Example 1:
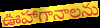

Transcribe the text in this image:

ఊహాగానాలను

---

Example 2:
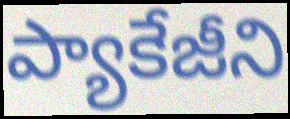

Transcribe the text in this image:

ప్యాకేజీని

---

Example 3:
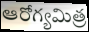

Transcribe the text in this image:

ఆరోగ్యమిత్ర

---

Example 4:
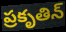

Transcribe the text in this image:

ప్రకృతిన్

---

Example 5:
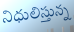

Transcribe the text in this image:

నిధులిస్తున్న